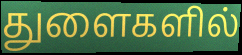
துளைகளில்